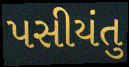
પસીયંતુ